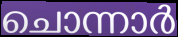
ചൊന്നാർ